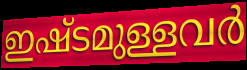
ഇഷ്ടമുള്ളവർ